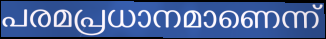
പരമപ്രധാനമാണെന്ന്